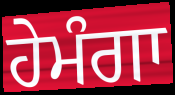
ਹੇਮੰਗਾ